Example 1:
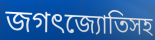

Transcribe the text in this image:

জগৎজ্যোতিসহ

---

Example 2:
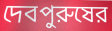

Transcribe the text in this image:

দেবপুরুষের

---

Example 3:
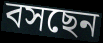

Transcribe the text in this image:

বসছেন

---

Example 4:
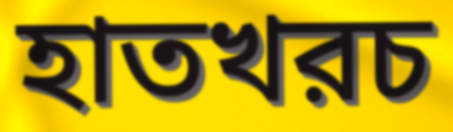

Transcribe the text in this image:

হাতখরচ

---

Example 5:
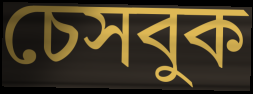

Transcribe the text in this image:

চেসবুক